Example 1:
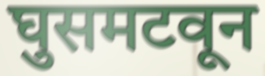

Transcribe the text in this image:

घुसमटवून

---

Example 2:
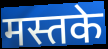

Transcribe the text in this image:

मस्तके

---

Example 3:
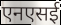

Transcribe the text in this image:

एनएसई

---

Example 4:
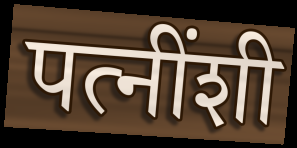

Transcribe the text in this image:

पत्नींशी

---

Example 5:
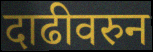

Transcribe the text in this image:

दाढीवरुन